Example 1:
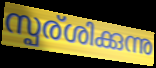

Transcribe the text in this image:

സ്പര്ശിക്കുന്നു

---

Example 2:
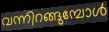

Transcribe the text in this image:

വന്നിറങ്ങുമ്പോൾ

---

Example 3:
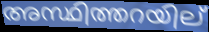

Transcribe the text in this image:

അസ്ഥിത്തറയില്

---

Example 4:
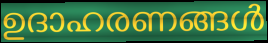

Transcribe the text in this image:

ഉദാഹരണങ്ങൾ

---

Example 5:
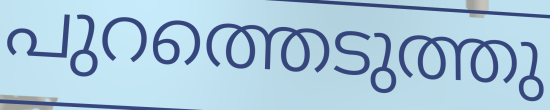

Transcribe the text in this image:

പുറത്തെടുത്തു